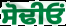
ਸੋਢੀਓਂ